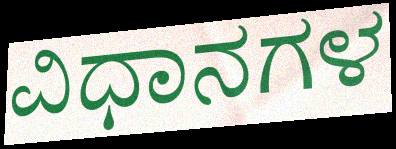
ವಿಧಾನಗಳ